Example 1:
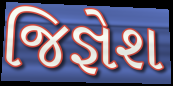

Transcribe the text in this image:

જિજ્ઞેશ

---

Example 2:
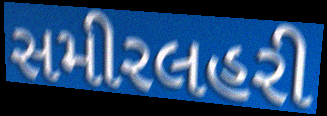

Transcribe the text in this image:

સમીરલહરી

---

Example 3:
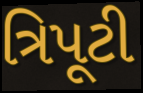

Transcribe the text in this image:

ત્રિપૂટી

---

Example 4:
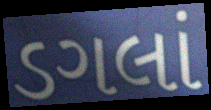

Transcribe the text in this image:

ડગલાં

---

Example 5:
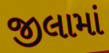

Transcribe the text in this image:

જીલામાં